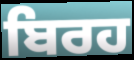
ਬਿਰਹ